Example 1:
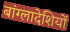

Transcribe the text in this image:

बांग्लादेशियों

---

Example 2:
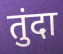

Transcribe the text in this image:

तुंदा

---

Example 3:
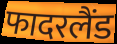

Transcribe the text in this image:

फादरलैंड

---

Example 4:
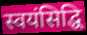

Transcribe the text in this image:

स्वयंसिद्धि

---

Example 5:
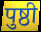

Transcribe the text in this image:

पुष्ठी